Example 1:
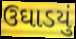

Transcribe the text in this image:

ઉઘાડયું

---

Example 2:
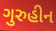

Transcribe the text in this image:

ગુરુહીન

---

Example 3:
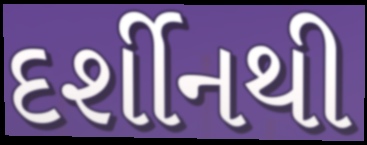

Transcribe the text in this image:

દર્શીનથી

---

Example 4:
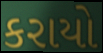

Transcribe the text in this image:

કરાયો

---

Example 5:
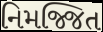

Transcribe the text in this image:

નિમજ્જિત